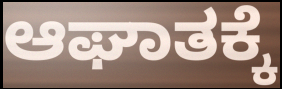
ಆಘಾತಕ್ಕೆ